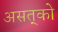
असत्‌को